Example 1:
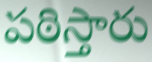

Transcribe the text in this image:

పఠిస్తారు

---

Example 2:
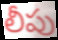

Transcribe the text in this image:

లీపు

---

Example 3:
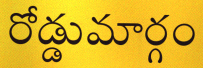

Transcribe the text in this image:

రోడ్డుమార్గం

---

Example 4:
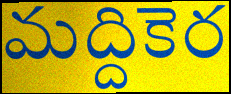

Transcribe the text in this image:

మద్దికెర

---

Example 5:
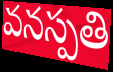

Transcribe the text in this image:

వనస్పతి